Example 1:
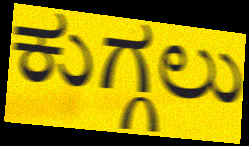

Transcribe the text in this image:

ಕುಗ್ಗಲು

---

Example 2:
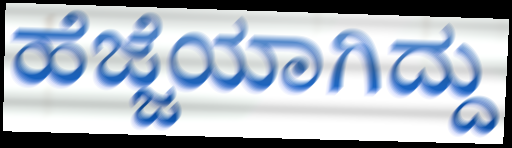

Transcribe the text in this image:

ಹೆಜ್ಜೆಯಾಗಿದ್ದು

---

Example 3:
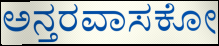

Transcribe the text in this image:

ಅನ್ತರವಾಸಕೋ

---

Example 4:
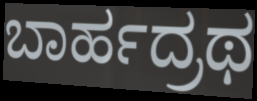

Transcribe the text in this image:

ಬಾರ್ಹದ್ರಥ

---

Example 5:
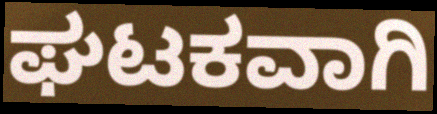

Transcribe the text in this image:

ಘಟಕವಾಗಿ